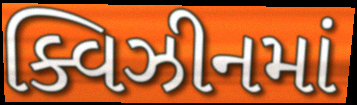
ક્વિઝીનમાં